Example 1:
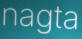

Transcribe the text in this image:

nagta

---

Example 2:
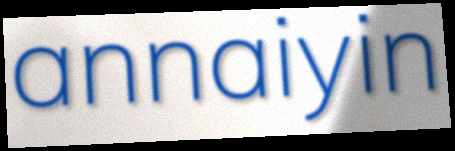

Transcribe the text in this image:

annaiyin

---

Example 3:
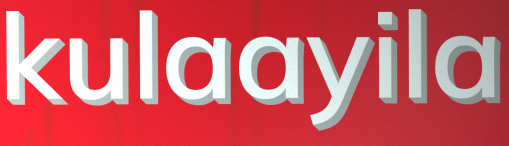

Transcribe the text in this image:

kulaayila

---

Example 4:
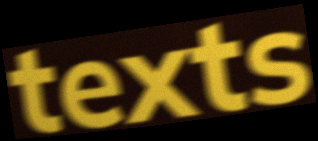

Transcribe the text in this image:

texts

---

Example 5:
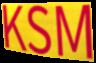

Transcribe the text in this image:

KSM